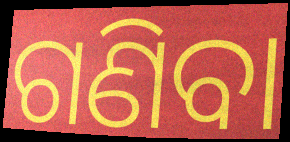
ଗଣିବା